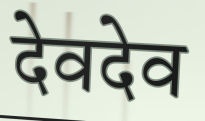
देवदेव